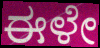
ಈಳೇ